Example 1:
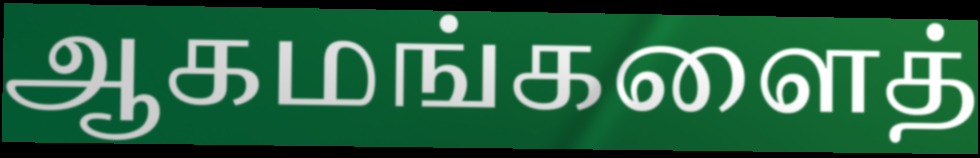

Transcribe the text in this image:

ஆகமங்களைத்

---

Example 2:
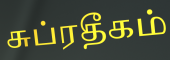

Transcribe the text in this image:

சுப்ரதீகம்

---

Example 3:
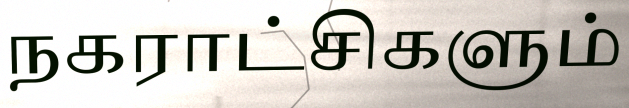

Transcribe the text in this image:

நகராட்சிகளும்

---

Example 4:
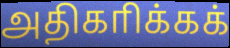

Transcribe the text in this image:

அதிகரிக்கக்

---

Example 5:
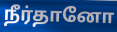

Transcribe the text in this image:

நீர்தானோ